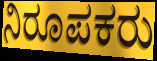
ನಿರೂಪಕರು